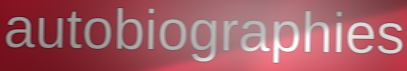
autobiographies